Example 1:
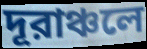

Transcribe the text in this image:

দূরাঞ্চলে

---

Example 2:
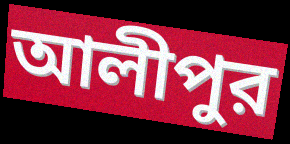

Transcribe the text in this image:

আলীপুর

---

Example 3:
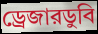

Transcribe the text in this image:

ড্রেজারডুবি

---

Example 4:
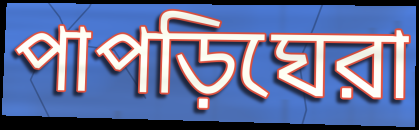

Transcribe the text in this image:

পাপড়িঘেরা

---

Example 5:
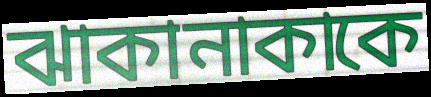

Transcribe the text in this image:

ঝাকানাকাকে